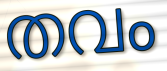
തവം